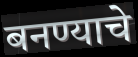
बनण्याचे